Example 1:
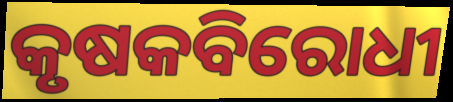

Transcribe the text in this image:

କୃଷକବିରୋଧୀ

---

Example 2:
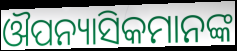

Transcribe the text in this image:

ଔପନ୍ୟାସିକମାନଙ୍କ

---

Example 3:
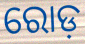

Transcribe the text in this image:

ରୋଡ଼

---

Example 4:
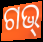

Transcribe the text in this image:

ଗଭ୍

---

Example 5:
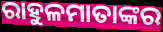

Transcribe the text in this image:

ରାହୁଳମାତାଙ୍କର